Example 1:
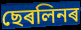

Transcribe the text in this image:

ছেৰলিনৰ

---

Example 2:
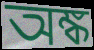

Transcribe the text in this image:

অঙ্ক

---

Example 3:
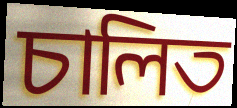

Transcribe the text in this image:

চালিত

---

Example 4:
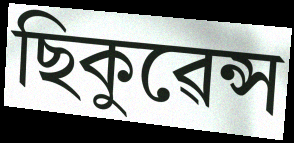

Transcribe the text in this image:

ছিকুৱেন্স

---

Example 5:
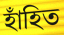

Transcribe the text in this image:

হাঁহিত